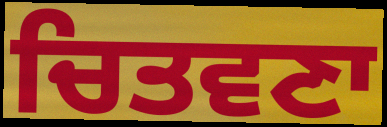
ਚਿਤਵਣਾ